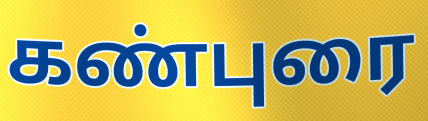
கண்புரை